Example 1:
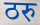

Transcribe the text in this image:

ठरु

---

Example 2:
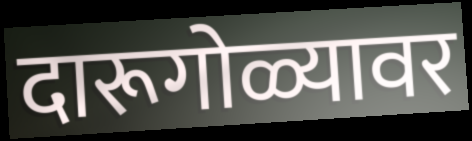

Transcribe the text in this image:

दारूगोळ्यावर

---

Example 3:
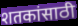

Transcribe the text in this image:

शतकांसाठी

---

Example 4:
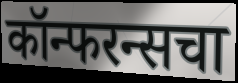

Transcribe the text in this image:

कॉन्फरन्सचा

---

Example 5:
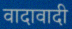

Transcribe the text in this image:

वादावादी